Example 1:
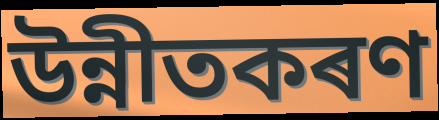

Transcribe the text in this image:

উন্নীতকৰণ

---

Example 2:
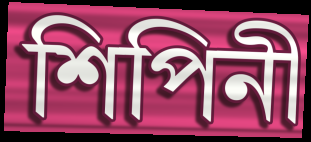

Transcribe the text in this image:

শিপিনী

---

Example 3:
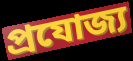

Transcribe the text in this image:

প্ৰযোজ্য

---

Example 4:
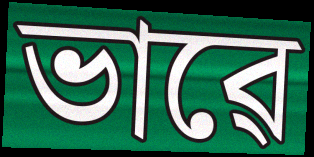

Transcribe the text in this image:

ভাৱে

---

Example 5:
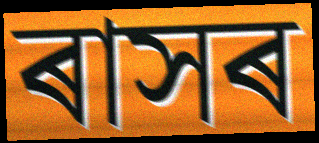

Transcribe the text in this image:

ৰাসৰ